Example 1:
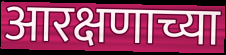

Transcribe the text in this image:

आरक्षणाच्या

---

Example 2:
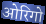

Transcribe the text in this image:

ओरिगो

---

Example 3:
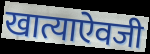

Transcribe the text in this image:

खात्याऐवजी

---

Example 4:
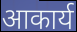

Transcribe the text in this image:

आकार्य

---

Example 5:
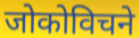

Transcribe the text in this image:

जोकोविचने